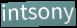
intsony